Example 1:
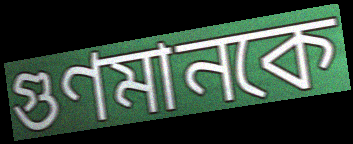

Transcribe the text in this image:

গুণমানকে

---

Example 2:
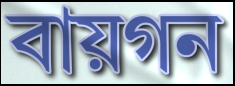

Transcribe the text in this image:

বায়গন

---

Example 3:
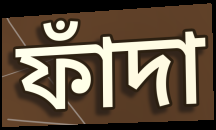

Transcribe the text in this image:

ফাঁদা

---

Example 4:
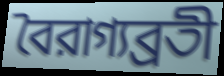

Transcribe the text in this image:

বৈরাগ্যব্রতী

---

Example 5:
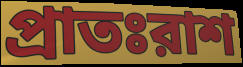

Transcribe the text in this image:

প্রাতঃরাশ